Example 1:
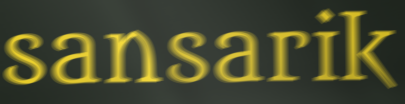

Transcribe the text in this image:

sansarik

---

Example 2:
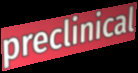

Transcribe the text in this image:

preclinical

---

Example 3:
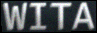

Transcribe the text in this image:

WITA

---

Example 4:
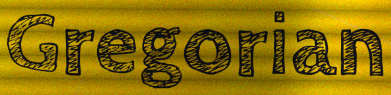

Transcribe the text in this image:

Gregorian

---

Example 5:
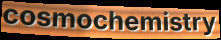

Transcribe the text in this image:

cosmochemistry